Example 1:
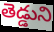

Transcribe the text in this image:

తెడ్డుని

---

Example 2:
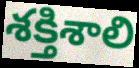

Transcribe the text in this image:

శక్తిశాలి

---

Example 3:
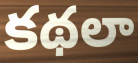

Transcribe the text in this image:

కథలా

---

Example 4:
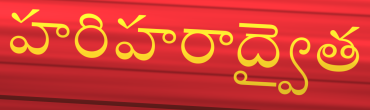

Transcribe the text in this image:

హరిహరాద్వైత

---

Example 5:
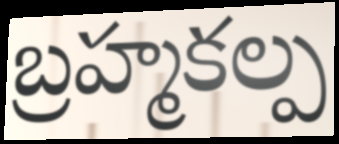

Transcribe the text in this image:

బ్రహ్మకల్ప